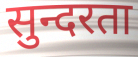
सुन्दरता